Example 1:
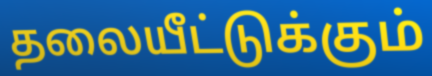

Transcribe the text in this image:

தலையீட்டுக்கும்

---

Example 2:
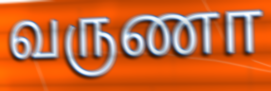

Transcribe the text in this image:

வருணா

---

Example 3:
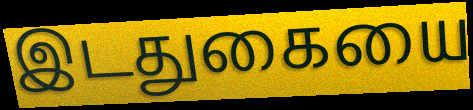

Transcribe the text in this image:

இடதுகையை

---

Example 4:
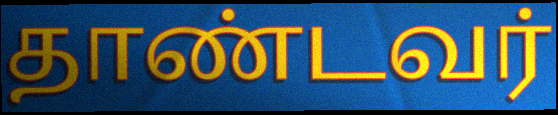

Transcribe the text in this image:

தாண்டவர்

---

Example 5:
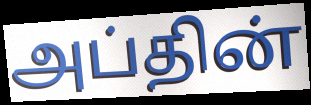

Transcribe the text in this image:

அப்தின்